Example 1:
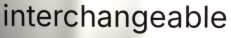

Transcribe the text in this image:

interchangeable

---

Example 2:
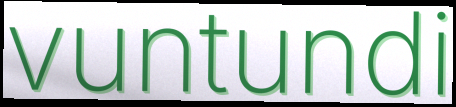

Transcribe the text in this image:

vuntundi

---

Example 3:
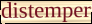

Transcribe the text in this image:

distemper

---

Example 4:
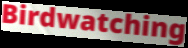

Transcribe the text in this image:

Birdwatching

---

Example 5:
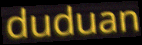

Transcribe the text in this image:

duduan